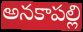
అనకాపల్లి